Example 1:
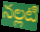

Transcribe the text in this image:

నల్లటి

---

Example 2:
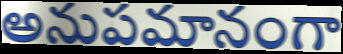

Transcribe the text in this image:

అనుపమానంగా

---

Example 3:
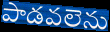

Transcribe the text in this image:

పాడవలెను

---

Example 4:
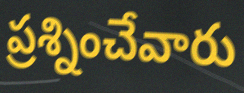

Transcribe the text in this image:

ప్రశ్నించేవారు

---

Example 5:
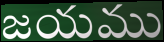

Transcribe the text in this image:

జయము